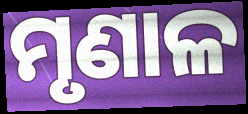
ମୃଣାଳ